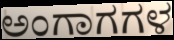
ಅಂಗಾಗಗಳ